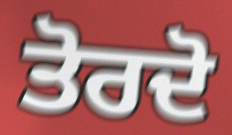
ਤੋਰਦੋ